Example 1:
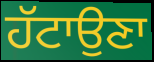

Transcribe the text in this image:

ਹੱਟਾਉਣਾ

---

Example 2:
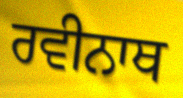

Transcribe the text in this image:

ਰਵੀਨਾਥ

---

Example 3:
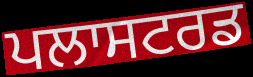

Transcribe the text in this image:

ਪਲਾਸਟਰਡ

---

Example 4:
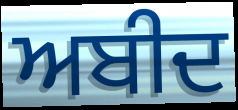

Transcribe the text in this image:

ਅਬੀਦ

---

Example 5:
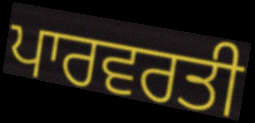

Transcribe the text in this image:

ਪਾਰਵਰਤੀ